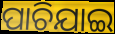
ପାଚିଯାଇ